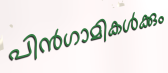
പിൻഗാമികൾക്കും